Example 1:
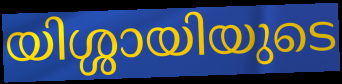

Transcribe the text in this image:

യിശ്ശായിയുടെ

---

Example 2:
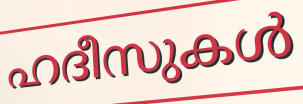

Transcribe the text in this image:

ഹദീസുകൾ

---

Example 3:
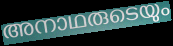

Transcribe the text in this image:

അനാഥരുടെയും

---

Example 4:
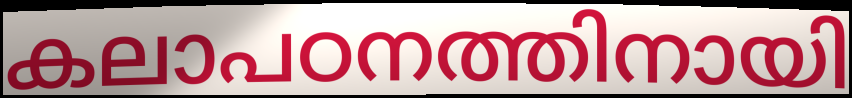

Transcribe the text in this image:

കലാപഠനത്തിനായി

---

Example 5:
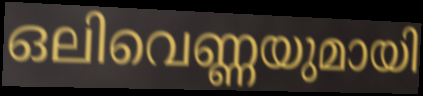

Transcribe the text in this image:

ഒലിവെണ്ണയുമായി